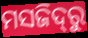
ମସଜିଦ୍‌ରୁ